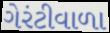
ગેરંટીવાળા